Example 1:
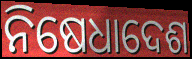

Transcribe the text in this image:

ନିଷେଧାଦେଶ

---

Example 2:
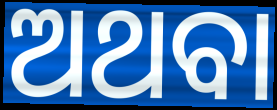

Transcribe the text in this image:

ଅଥବା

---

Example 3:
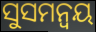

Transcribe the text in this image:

ସୁସମନ୍ଵୟ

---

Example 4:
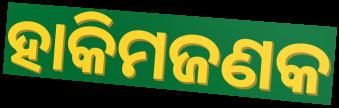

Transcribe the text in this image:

ହାକିମଜଣକ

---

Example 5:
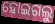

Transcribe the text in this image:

ହୋଇଗଲୁ